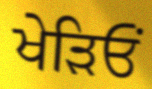
ਖੇੜਿਓਂ